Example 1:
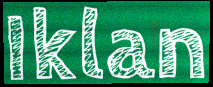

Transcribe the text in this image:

Iklan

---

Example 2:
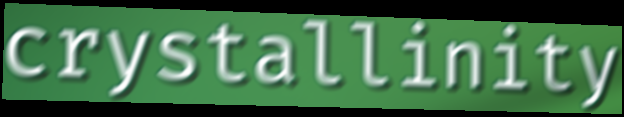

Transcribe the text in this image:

crystallinity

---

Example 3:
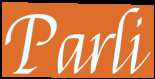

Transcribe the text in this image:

Parli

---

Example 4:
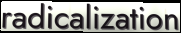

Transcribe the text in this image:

radicalization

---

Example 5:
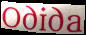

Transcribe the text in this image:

Odida